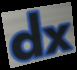
dx